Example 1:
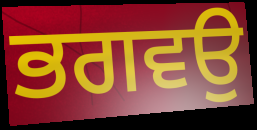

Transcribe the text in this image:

ਭਗਵਉ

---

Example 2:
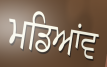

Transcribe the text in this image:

ਮਡਿਆਂਵ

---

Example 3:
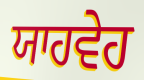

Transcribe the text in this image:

ਯਾਹਵੇਹ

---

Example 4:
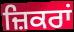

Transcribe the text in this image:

ਜ਼ਿਕਰਾਂ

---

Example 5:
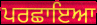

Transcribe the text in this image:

ਪਰਛਾਇਆ